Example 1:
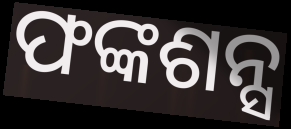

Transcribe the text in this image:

ଫଙ୍କଶନ୍ସ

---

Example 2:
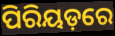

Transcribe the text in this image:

ପିରିୟଡ଼ରେ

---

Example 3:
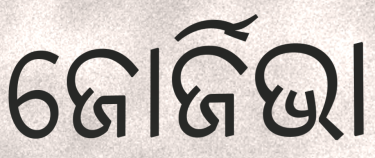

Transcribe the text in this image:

ଜୋର୍ଜିଭା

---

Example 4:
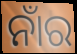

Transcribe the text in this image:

ନାଁର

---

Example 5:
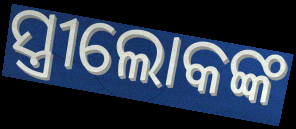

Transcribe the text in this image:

ସ୍ତ୍ରୀଲୋକଙ୍କ